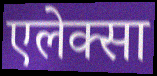
एलेक्सा